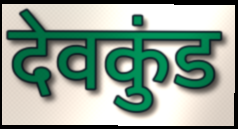
देवकुंड